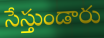
సేస్తుండారు